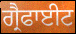
ਗ੍ਰੈਫਾਈਟ